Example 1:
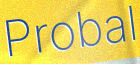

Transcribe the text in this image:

Probal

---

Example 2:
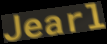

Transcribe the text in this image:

Jearl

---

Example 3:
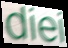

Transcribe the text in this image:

diei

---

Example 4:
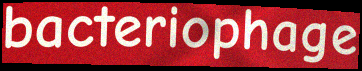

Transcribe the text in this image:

bacteriophage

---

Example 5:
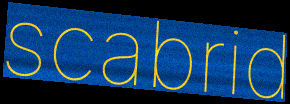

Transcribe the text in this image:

scabrid